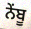
ਨੇਂਬੂ